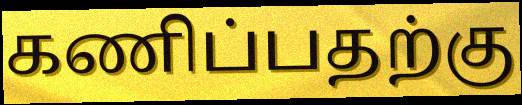
கணிப்பதற்கு